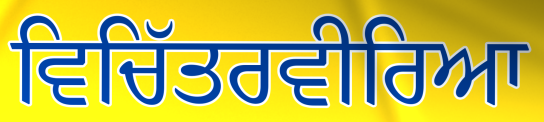
ਵਿਚਿੱਤਰਵੀਰਿਆ